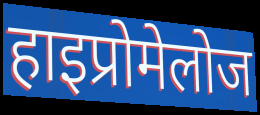
हाइप्रोमेलोज